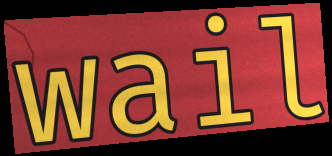
wail